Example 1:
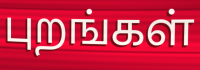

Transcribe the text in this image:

புறங்கள்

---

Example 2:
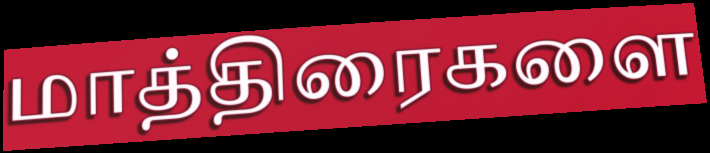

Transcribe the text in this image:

மாத்திரைகளை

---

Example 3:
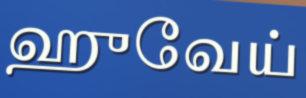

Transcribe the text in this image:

ஹுவேய்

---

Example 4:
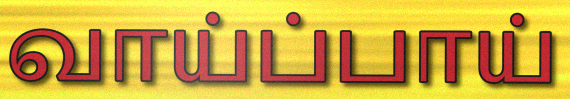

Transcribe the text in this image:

வாய்ப்பாய்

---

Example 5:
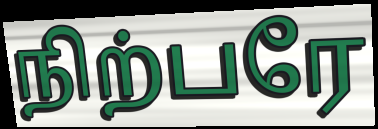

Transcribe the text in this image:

நிற்பரே